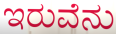
ಇರುವೆನು